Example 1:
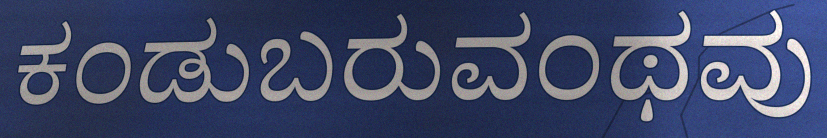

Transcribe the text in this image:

ಕಂಡುಬರುವಂಥವು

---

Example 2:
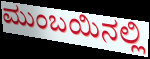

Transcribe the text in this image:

ಮುಂಬಯಿನಲ್ಲಿ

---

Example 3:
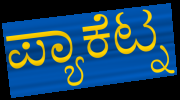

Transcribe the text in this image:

ಪ್ಯಾಕೆಟ್ನ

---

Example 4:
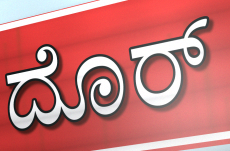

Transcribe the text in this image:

ದೊರ್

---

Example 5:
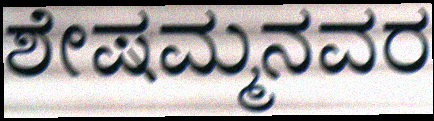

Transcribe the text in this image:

ಶೇಷಮ್ಮನವರ